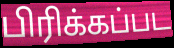
பிரிக்கப்பட